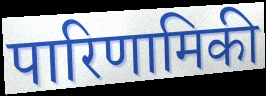
पारिणामिकी